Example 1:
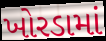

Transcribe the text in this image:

ખોરડામાં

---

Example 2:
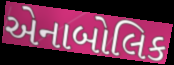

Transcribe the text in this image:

એનાબોલિક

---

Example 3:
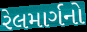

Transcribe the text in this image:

રેલમાર્ગનો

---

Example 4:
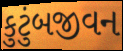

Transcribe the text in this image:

કુટુંબજીવન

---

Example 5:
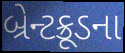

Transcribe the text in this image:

બ્રેન્ટક્રૂડના